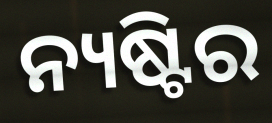
ନ୍ୟଷ୍ଟିର